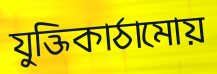
যুক্তিকাঠামোয়